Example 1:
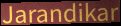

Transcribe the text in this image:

Jarandikar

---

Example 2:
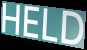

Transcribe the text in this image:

HELD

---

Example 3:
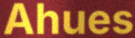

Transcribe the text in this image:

Ahues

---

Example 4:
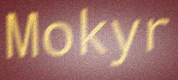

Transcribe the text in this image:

Mokyr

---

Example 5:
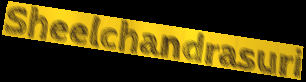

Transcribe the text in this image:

Sheelchandrasuri